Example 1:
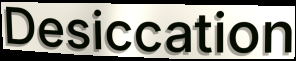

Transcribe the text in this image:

Desiccation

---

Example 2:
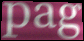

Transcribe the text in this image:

pag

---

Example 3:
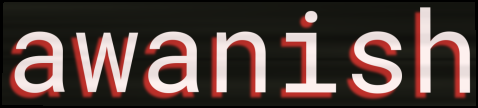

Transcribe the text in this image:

awanish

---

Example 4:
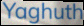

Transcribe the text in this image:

Yaghuth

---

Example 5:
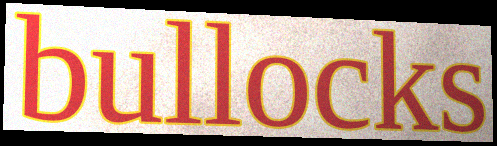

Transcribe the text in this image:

bullocks